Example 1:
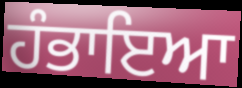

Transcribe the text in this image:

ਹੰਭਾਇਆ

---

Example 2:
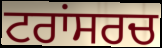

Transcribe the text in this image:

ਟਰਾਂਸਰਚ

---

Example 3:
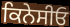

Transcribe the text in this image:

ਕਿਨੇਸੀਓ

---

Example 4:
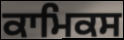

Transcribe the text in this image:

ਕਾਮਿਕਸ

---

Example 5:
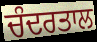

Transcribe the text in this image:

ਚੰਦਰਤਾਲ